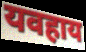
यवहाय